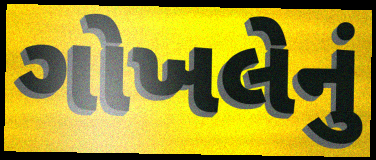
ગોખલેનું